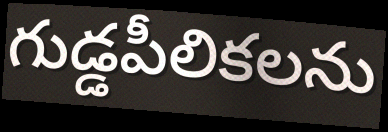
గుడ్డపీలికలను